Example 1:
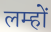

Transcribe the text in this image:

लम्हों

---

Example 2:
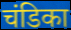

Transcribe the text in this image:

चंडिका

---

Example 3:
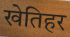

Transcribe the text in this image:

खेतिहर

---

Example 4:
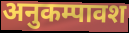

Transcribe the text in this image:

अनुकम्पावश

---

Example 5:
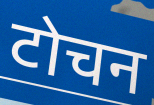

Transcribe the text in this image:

टोचन